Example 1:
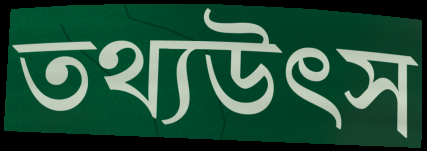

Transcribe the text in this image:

তথ্যউৎস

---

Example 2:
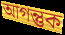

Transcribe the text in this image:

আগন্তুক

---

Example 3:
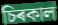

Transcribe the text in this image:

চিৰকাল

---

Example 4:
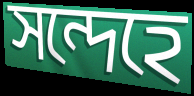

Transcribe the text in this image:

সন্দেহে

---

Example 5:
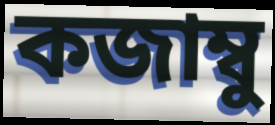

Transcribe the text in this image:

কজাম্বু